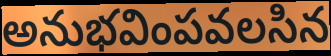
అనుభవింపవలసిన